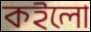
কইলো